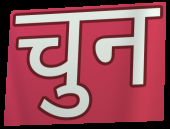
चुन